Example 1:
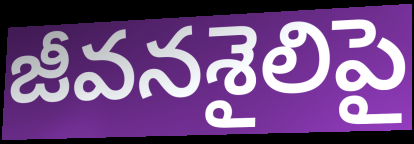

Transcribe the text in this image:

జీవనశైలిపై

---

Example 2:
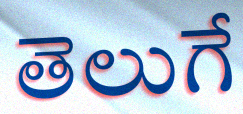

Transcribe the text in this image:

తెలుగే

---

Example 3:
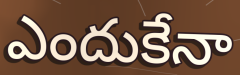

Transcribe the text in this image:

ఎందుకేనా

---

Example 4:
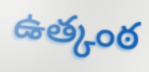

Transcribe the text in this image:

ఉత్కంఠ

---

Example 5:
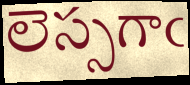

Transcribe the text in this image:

లెస్సగాఁ